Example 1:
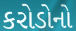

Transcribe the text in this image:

કરોડોનો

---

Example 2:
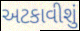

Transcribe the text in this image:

અટકાવીશું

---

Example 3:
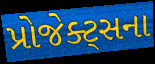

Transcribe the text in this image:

પ્રોજેક્ટ્સના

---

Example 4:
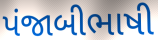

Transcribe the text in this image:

પંજાબીભાષી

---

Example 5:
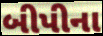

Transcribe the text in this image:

બીપીના